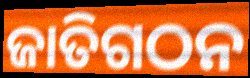
ଜାତିଗଠନ